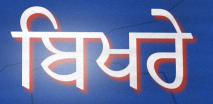
ਬਿਖਰੇ